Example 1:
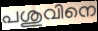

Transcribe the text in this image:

പശുവിനെ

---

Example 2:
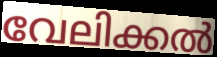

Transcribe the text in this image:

വേലിക്കൽ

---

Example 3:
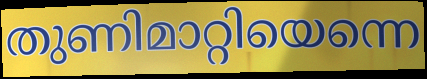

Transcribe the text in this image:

തുണിമാറ്റിയെന്നെ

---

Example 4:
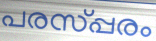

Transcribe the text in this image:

പരസ്പ്പരം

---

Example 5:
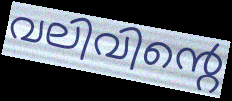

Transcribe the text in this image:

വലിവിന്റെ